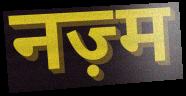
नज़्म